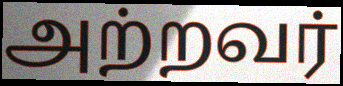
அற்றவர்